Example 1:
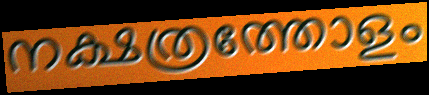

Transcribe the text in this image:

നക്ഷത്രത്തോളം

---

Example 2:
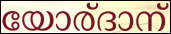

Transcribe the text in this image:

യോര്ദാന്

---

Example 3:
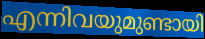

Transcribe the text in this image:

എന്നിവയുമുണ്ടായി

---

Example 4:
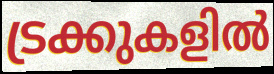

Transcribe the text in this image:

ട്രക്കുകളിൽ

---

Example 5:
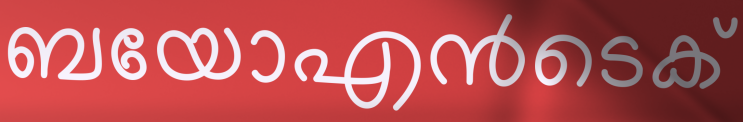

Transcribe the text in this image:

ബയോഎൻടെക്